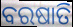
ବରଷାତି